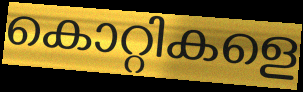
കൊറ്റികളെ